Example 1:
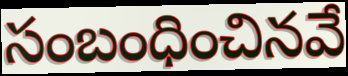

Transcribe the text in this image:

సంబంధించినవే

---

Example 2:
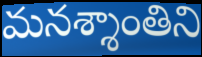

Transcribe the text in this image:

మనశ్శాంతిని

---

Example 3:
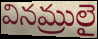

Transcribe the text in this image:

వినమ్రులై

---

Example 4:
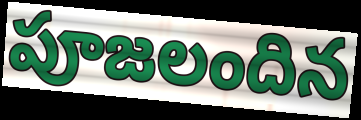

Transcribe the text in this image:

పూజలందిన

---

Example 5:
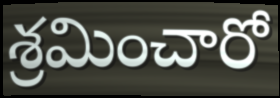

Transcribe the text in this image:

శ్రమించారో